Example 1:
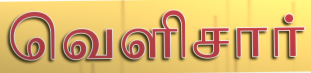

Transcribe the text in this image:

வெளிசார்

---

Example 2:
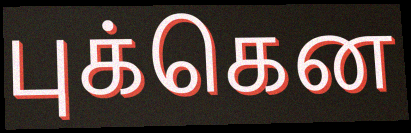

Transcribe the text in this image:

புக்கென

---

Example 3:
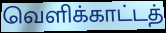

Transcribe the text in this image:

வெளிக்காட்டத்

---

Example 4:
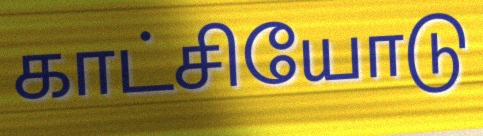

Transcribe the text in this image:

காட்சியோடு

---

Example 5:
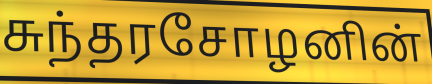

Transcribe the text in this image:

சுந்தரசோழனின்